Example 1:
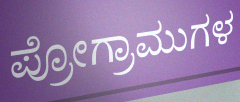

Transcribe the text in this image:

ಪ್ರೋಗ್ರಾಮುಗಳ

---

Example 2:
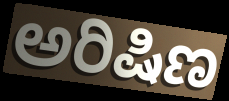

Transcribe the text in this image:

ಅರಿಷಿಣ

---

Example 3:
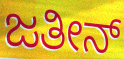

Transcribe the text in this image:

ಜತೀನ್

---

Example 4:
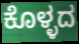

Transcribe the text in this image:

ಕೊಳ್ಳದ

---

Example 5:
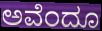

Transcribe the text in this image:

ಅವೆಂದೂ